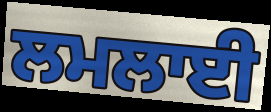
ਲਮਲਾਈ